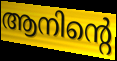
ആനിന്റെ